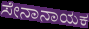
ಸೇನಾನಾಯಕ